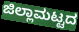
ಜಿಲ್ಲಾಮಟ್ಟದ